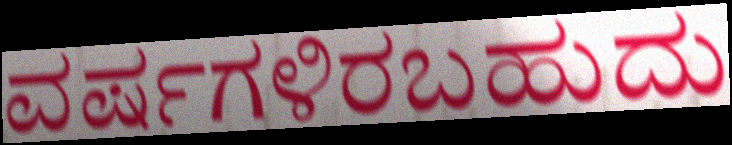
ವರ್ಷಗಳಿರಬಹುದು